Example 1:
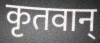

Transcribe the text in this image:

कृतवान्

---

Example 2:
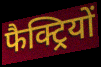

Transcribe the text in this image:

फैक्ट्रियों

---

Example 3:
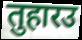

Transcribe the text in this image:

तुहारउ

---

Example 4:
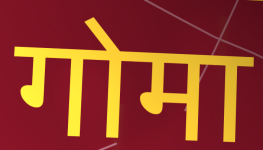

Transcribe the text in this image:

गोमा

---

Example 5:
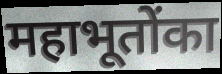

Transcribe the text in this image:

महाभूतोंका